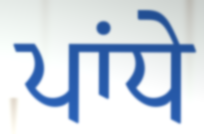
ਪਾਂਧੇ